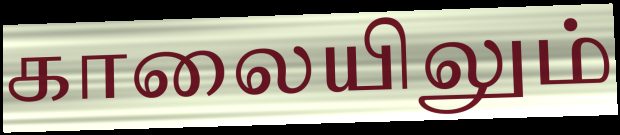
காலையிலும்